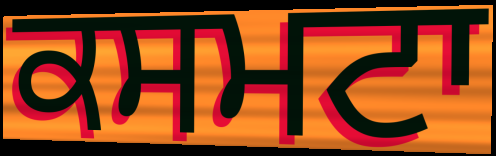
ਕਸਮਟਾ